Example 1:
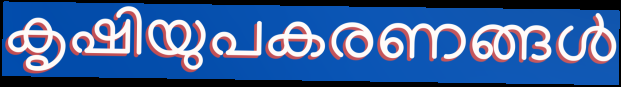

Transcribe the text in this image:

കൃഷിയുപകരണങ്ങൾ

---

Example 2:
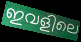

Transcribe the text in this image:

ഇവളിലെ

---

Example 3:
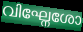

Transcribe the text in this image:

വിഘ്നേശോ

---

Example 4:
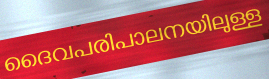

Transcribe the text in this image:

ദൈവപരിപാലനയിലുള്ള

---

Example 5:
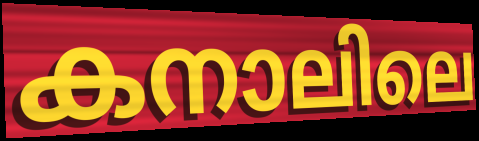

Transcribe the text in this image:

കനാലിലെ